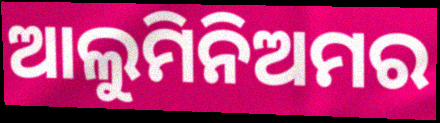
ଆଲୁମିନିଅମର